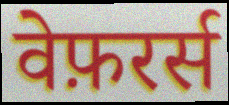
वेफ़रर्स